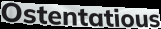
Ostentatious